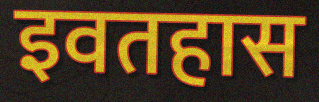
इवतहास